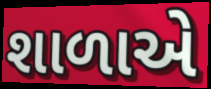
શાળાએે